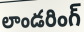
లాండరింగ్